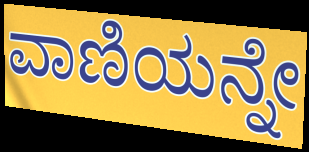
ವಾಣಿಯನ್ನೇ